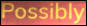
Possibly